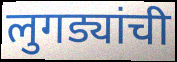
लुगड्यांची